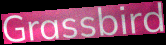
Grassbird